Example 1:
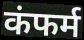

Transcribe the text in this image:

कंफर्म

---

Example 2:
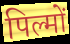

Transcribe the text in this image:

पिल्मों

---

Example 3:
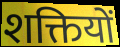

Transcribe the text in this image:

शक्तियों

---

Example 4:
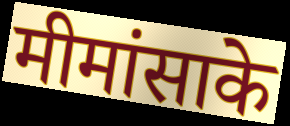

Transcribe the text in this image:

मीमांसाके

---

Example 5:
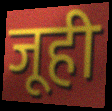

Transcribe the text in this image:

जूही